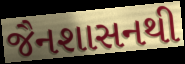
જૈનશાસનથી